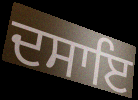
ਦਸਾਇ